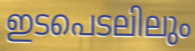
ഇടപെടലിലും